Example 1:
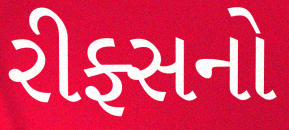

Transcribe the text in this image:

રીફ્સનો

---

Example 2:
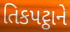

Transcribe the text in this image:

તિકપટ્ઠાને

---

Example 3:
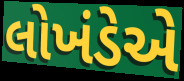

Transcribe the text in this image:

લોખંડેએ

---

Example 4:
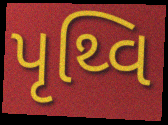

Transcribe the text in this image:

પૃથ્વિ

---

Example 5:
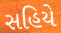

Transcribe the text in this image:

સહિયે